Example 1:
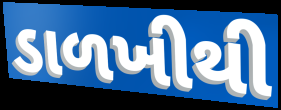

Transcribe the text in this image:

ડાળખીથી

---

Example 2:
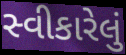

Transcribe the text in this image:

સ્વીકારેલું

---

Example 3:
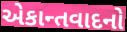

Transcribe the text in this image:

એકાન્તવાદનો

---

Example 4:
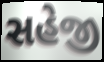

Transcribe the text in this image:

સહેજી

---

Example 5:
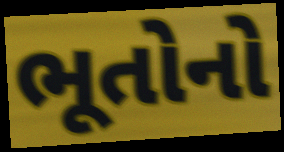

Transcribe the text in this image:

ભૂતોનો